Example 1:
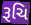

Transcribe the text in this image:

રૂચિ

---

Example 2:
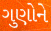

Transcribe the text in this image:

ગુણોને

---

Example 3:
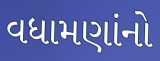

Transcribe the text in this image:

વધામણાંનો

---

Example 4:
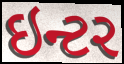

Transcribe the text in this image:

ઇન્ટર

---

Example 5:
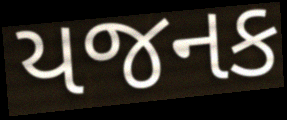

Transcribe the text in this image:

યજનક